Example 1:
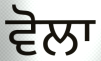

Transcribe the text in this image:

ਵੋਲਾ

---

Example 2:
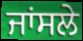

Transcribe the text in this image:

ਜਾਂਸਲੇ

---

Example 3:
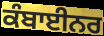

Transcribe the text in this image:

ਕੰਬਾਈਨਰ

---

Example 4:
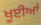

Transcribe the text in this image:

ਖੂਈਆਂ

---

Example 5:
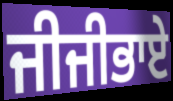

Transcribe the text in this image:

ਜੀਜੀਭਾਏ